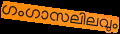
ഗംഗാസലിലവും